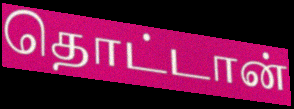
தொட்டான்